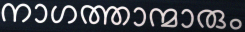
നാഗത്താന്മാരും